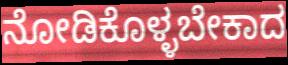
ನೋಡಿಕೊಳ್ಳಬೇಕಾದ